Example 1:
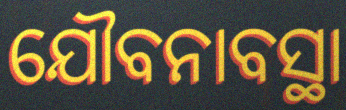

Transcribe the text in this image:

ଯୌବନାବସ୍ଥା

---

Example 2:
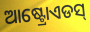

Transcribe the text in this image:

ଆଷ୍ଟ୍ରୋଏଡସ୍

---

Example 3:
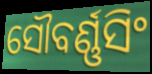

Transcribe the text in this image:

ସୌବର୍ଣ୍ଣସିଂ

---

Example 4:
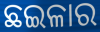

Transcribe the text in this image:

ଛଇଳାର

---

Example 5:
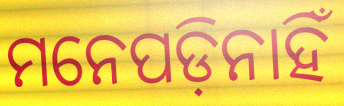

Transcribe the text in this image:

ମନେପଡ଼ିନାହିଁ